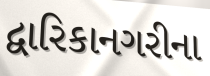
દ્વારિકાનગરીના